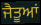
ਜੈਤੂਆਂ